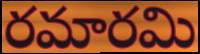
రమారమి